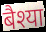
बैश्या